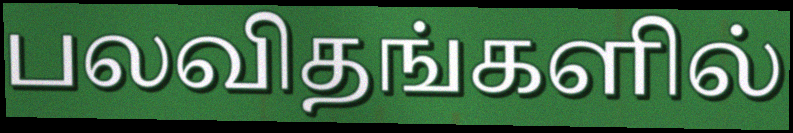
பலவிதங்களில்